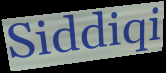
Siddiqi